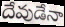
దేవుడేనా